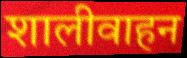
शालीवाहन